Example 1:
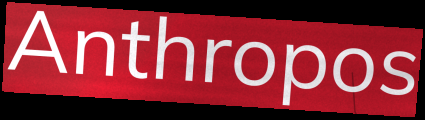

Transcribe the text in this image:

Anthropos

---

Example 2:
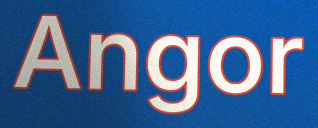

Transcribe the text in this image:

Angor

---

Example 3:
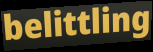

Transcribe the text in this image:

belittling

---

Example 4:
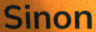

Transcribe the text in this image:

Sinon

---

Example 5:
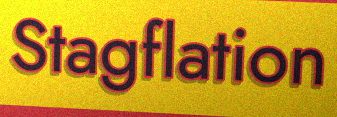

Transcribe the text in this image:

Stagflation